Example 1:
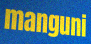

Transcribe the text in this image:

manguni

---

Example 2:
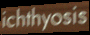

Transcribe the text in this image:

ichthyosis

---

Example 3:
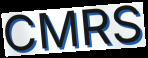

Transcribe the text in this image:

CMRS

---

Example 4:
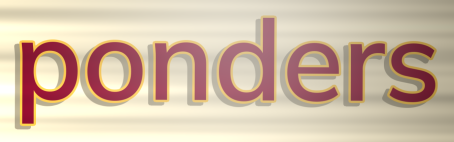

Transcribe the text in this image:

ponders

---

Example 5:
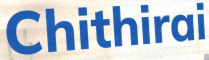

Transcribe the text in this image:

Chithirai